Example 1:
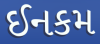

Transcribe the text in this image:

ઈનકમ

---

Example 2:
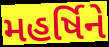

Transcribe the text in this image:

મહર્ષિને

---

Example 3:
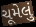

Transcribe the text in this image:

ચૂમેલું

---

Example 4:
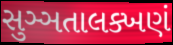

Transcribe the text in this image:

સુઞ્ઞતાલક્ખણં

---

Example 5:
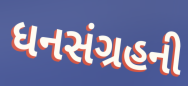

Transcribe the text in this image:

ધનસંગ્રહની